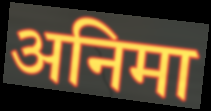
अनिमा